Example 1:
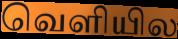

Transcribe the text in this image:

வெளியில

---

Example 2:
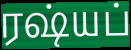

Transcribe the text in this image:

ரஷ்யப்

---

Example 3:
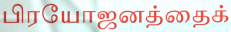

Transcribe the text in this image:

பிரயோஜனத்தைக்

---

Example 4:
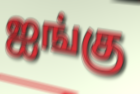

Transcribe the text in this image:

ஐங்கு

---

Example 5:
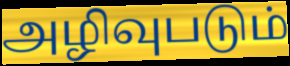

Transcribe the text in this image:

அழிவுபடும்